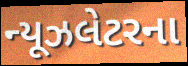
ન્યૂઝલેટરના